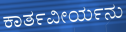
ಕಾರ್ತವೀರ್ಯನು